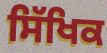
ਸਿੱਖਿਕ